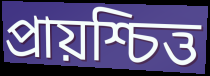
প্ৰায়শ্চিত্ত